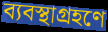
ব্যবস্থাগ্রহণে